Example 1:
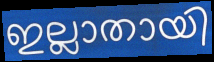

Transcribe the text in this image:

ഇല്ലാതായി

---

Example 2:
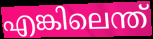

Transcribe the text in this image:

എങ്കിലെന്ത്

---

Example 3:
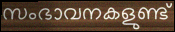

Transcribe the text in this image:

സംഭാവനകളുണ്ട്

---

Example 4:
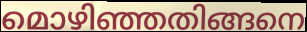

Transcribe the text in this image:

മൊഴിഞ്ഞതിങ്ങനെ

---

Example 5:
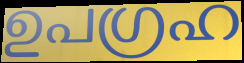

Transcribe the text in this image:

ഉപഗ്രഹ